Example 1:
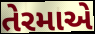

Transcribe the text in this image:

તેરમાએ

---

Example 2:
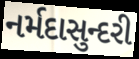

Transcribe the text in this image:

નર્મદાસુન્દરી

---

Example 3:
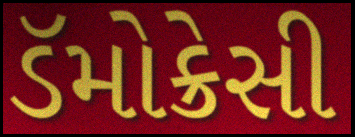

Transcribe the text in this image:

ડૅમોક્રેસી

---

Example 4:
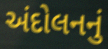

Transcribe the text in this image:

અંદોલનનું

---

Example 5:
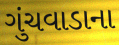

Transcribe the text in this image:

ગુંચવાડાના